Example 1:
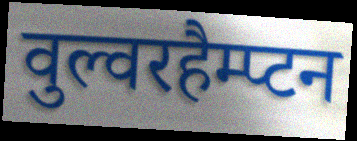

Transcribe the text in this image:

वुल्वरहैम्प्टन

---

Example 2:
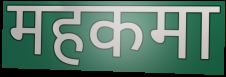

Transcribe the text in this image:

महकमा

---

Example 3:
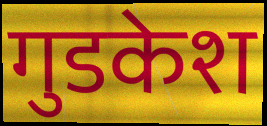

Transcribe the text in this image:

गुडकेश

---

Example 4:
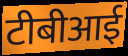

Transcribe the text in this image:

टीबीआई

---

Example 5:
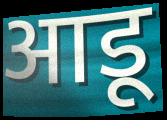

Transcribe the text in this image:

आडू